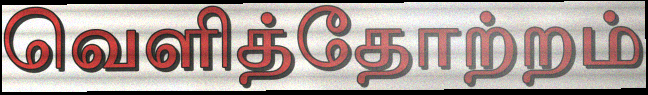
வெளித்தோற்றம்